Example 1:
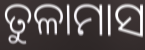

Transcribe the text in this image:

ତୁଳାମାସ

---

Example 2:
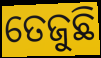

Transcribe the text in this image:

ତେଜୁଛି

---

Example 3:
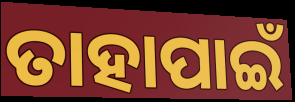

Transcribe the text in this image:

ତାହାପାଇଁ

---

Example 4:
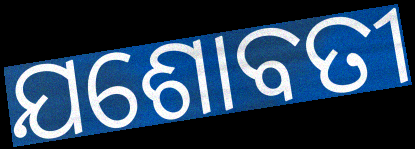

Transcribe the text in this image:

ଯଶୋବତୀ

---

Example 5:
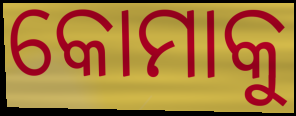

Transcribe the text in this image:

କୋମାକୁ